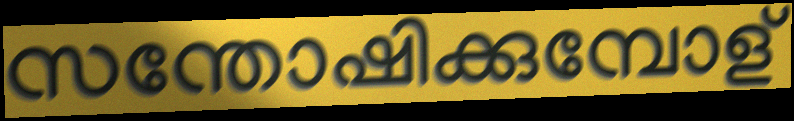
സന്തോഷിക്കുമ്പോള്